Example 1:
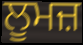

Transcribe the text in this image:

ਲੂਮਜ਼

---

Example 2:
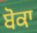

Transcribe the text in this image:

ਬੋਕਾ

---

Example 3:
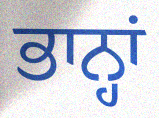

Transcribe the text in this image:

ਭਾਨ੍ਹਾਂ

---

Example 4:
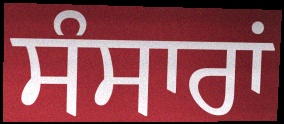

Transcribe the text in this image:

ਸੰਸਾਰਾਂ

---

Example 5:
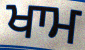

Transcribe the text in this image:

ਖਾਮ